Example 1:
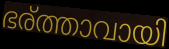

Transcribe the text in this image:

ഭര്ത്താവായി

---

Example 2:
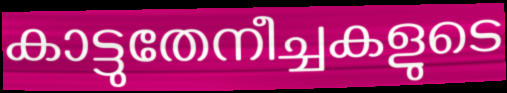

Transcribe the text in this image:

കാട്ടുതേനീച്ചകളുടെ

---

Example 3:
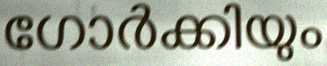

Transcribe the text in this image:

ഗോർക്കിയും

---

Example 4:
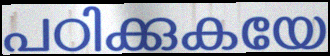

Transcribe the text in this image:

പഠിക്കുകയേ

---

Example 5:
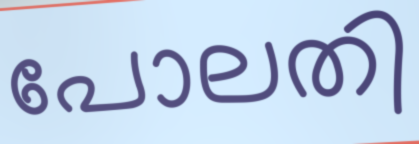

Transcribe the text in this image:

പോലതി